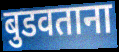
बुडवताना